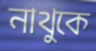
নাথুকে